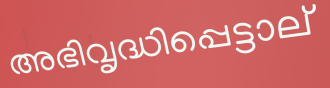
അഭിവൃദ്ധിപ്പെട്ടാല്